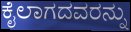
ಕೈಲಾಗದವರನ್ನು